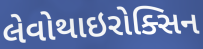
લેવોથાઇરોક્સિન